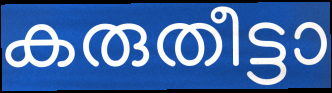
കരുതീട്ടാ